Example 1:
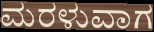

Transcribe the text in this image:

ಮರಳುವಾಗ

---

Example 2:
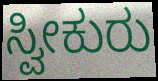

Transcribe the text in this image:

ಸ್ವೀಕುರು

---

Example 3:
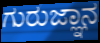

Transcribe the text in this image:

ಗುರುಜ್ಞಾನ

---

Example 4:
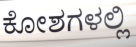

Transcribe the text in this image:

ಕೋಶಗಳಲ್ಲಿ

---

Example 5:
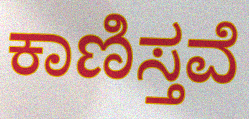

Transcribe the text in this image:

ಕಾಣಿಸ್ತವೆ